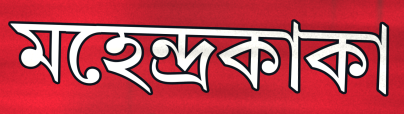
মহেন্দ্রকাকা